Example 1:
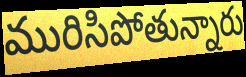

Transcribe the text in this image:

మురిసిపోతున్నారు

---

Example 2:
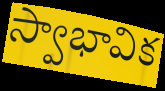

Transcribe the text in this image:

స్వాభావిక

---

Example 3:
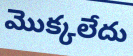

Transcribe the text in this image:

మొక్కలేదు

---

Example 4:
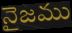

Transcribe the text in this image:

నైజము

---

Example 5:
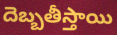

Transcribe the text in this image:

దెబ్బతీస్తాయి